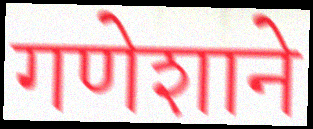
गणेशाने